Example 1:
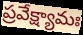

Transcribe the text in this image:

ప్రవేక్ష్యామః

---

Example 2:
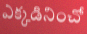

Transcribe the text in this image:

ఎక్కడినించో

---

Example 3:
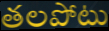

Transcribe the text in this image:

తలపోటు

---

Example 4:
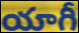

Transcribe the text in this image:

యాగీ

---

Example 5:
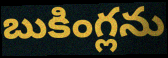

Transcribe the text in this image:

బుకింగ్లను